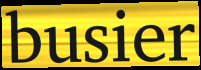
busier